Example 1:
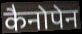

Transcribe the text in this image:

कैनोपेन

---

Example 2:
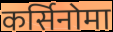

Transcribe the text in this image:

कर्सिनोमा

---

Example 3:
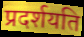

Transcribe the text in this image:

प्रदर्शयति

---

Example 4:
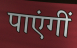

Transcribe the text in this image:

पाएंगीं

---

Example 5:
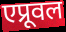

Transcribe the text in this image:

एप्रूवल